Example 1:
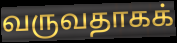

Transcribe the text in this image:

வருவதாகக்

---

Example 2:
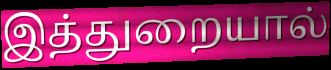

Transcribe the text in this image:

இத்துறையால்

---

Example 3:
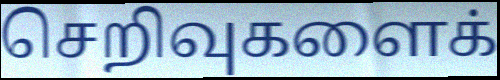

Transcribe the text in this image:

செறிவுகளைக்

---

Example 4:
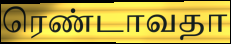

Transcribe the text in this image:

ரெண்டாவதா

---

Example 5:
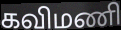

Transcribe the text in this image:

கவிமணி